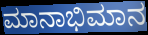
ಮಾನಾಭಿಮಾನ